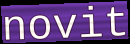
novit